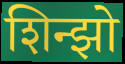
शिन्झो